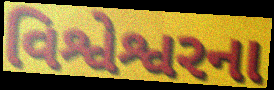
વિશ્વેશ્વરના